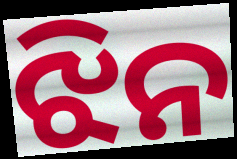
ଝିନ